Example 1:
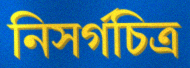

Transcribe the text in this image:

নিসর্গচিত্র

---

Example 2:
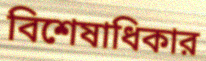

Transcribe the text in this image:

বিশেষাধিকার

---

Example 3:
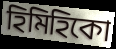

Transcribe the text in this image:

হিমিহিকো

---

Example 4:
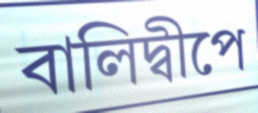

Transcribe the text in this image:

বালিদ্বীপে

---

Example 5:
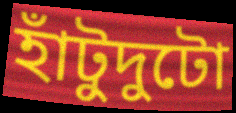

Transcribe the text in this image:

হাঁটুদুটো